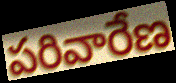
పరివారేణ